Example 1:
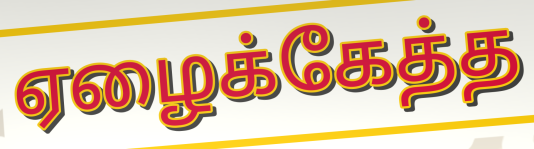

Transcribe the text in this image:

ஏழைக்கேத்த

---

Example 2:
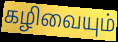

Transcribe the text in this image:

கழிவையும்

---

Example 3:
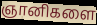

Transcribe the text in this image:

ஞானிகளை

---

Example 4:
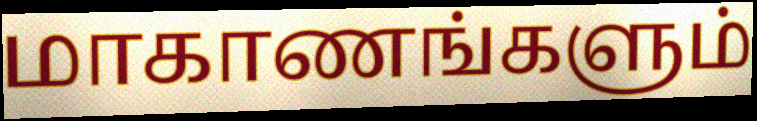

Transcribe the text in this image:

மாகாணங்களும்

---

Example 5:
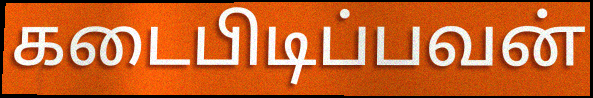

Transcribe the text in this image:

கடைபிடிப்பவன்